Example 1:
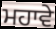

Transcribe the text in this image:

ਮਹਾਵੇ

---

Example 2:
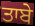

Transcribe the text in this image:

ਤਾਬੇ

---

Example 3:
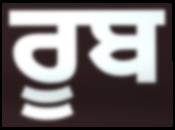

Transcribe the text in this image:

ਰੂਬ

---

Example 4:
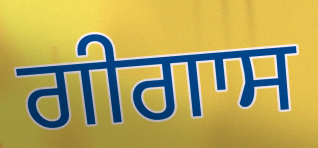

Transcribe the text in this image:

ਗੀਗਾਸ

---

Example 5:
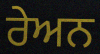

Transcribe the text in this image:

ਰੇਅਨ